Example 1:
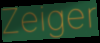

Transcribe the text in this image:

Zeiger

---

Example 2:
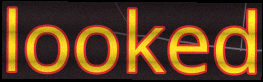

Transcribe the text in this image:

looked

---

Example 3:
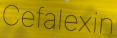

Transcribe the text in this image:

Cefalexin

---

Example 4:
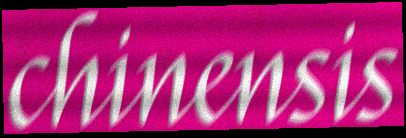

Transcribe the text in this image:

chinensis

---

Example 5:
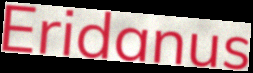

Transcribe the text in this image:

Eridanus